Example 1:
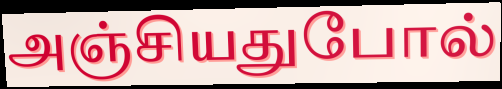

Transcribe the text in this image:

அஞ்சியதுபோல்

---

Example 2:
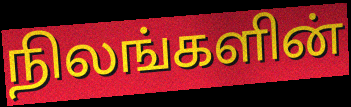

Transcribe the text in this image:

நிலங்களின்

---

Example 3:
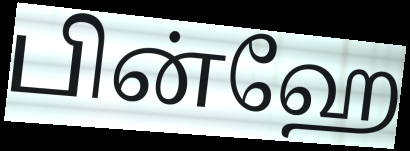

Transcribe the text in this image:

பின்ஹே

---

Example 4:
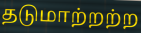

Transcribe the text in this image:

தடுமாற்றற்ற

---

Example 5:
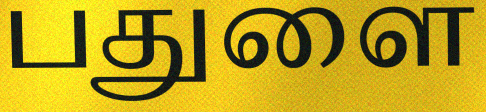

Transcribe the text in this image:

பதுளை